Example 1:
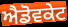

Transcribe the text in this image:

ਐਡੋਵਕੇਟ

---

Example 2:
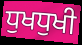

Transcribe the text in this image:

ਧੁਖਧੁਖੀ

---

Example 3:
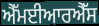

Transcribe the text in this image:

ਐੱਮਈਆਰਐੱਸ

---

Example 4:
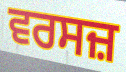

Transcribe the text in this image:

ਵਰਸਜ਼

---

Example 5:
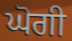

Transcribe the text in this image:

ਘੋਗੀ